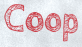
Coop